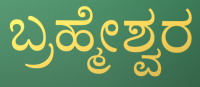
ಬ್ರಹ್ಮೇಶ್ವರ